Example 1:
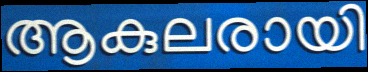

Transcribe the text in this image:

ആകുലരായി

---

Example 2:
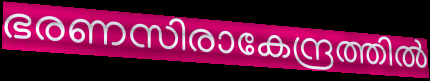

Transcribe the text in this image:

ഭരണസിരാകേന്ദ്രത്തിൽ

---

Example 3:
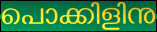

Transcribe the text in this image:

പൊക്കിളിനു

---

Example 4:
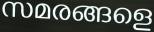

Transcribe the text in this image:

സമരങ്ങളെ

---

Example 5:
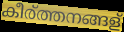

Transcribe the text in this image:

കീര്ത്തനങ്ങള്